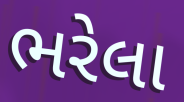
ભરેલા